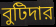
বুটিদার